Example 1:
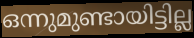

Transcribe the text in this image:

ഒന്നുമുണ്ടായിട്ടില്ല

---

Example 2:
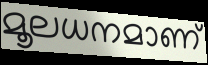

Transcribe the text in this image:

മൂലധനമാണ്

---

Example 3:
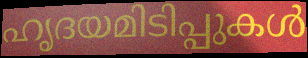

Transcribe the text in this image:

ഹൃദയമിടിപ്പുകൾ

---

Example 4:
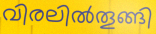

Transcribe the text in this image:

വിരലിൽതൂങ്ങി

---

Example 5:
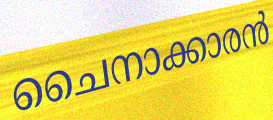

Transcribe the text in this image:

ചൈനാക്കാരൻ